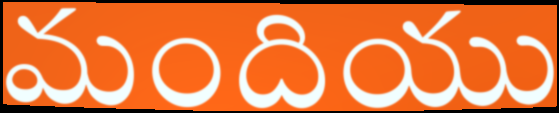
మందియు